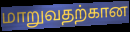
மாறுவதற்கான